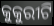
କୁକୁରୀଟି